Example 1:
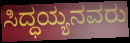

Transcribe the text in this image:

ಸಿದ್ಧಯ್ಯನವರು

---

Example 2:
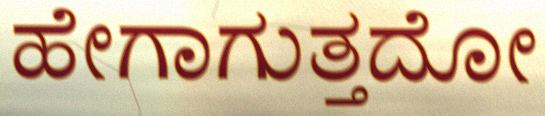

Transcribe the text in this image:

ಹೇಗಾಗುತ್ತದೋ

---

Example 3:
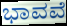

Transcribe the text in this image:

ಭಾವವೆ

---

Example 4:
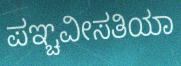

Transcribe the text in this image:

ಪಞ್ಚವೀಸತಿಯಾ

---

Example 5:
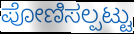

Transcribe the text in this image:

ಪೋಣಿಸಲ್ಪಟ್ಟು